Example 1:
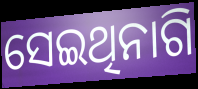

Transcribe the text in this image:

ସେଇଥିନାଗି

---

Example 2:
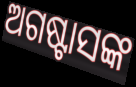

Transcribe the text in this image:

ଅଗଷ୍ଟାସଙ୍କ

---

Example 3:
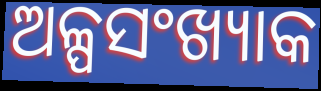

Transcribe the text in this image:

ଅଳ୍ପସଂଖ୍ୟାକ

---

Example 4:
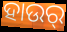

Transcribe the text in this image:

ହାଉର୍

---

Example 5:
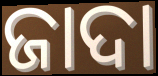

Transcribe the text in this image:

ଜାଦା